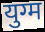
युग्म